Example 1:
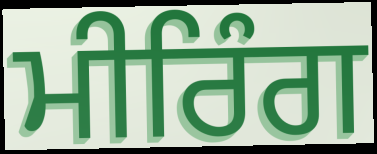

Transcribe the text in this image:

ਮੀਰਿੰਗ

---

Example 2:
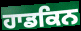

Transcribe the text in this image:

ਹਾਡਕਿਨ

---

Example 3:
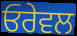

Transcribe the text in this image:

ਓਰੇਵਲ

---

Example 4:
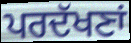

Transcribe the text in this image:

ਪਰਦੱਖਣਾਂ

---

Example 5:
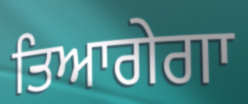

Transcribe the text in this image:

ਤਿਆਗੇਗਾ